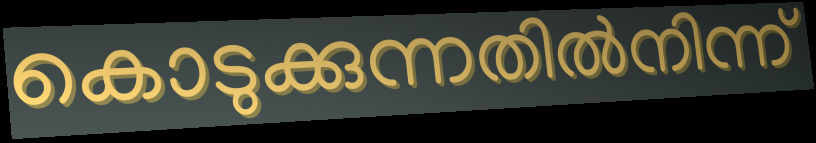
കൊടുക്കുന്നതിൽനിന്ന്